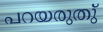
പറയരുതു്